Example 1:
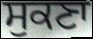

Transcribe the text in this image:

ਸੁਕਣਾ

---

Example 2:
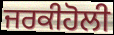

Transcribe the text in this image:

ਜਰਕੀਹੋਲੀ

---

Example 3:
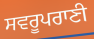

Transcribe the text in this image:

ਸਵਰੂਪਰਾਣੀ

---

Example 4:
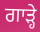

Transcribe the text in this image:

ਗਾੜ੍ਹੇ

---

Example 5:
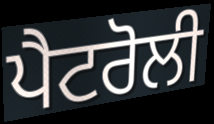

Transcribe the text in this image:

ਪੈਟਰੋਲੀ